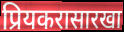
प्रियकरासारखा